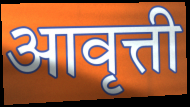
आवृत्ती